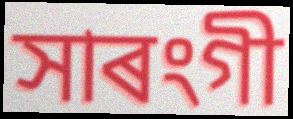
সাৰংগী